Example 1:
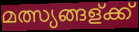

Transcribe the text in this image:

മത്സ്യങ്ങള്ക്ക്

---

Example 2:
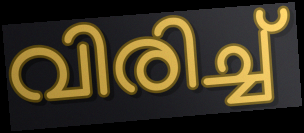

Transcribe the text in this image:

വിരിച്ച്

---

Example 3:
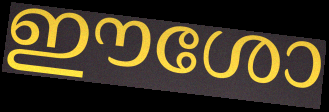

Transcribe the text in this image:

ഈശോ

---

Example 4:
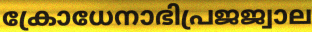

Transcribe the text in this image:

ക്രോധേനാഭിപ്രജജ്വാല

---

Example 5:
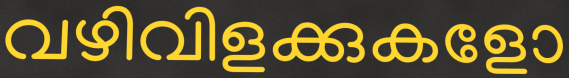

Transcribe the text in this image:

വഴിവിളക്കുകളോ